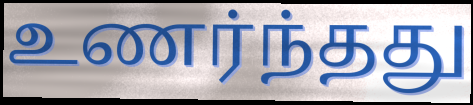
உணர்ந்தது